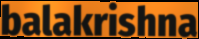
balakrishna